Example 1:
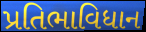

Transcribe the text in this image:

પ્રતિભાવિધાન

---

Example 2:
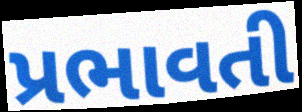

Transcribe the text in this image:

પ્રભાવતી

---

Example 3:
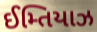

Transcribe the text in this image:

ઈમ્તિયાઝ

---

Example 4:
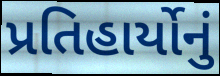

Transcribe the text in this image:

પ્રતિહાર્યોનું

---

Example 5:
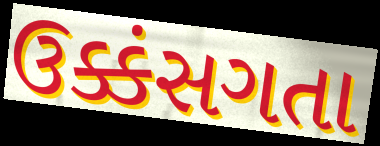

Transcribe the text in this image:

ઉક્કંસગતા